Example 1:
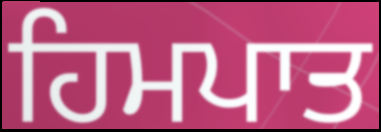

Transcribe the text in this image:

ਹਿਮਪਾਤ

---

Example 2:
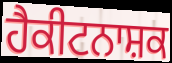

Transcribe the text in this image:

ਹੈਕੀਟਨਾਸ਼ਕ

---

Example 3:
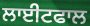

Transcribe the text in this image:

ਲਾਈਟਫਾਲ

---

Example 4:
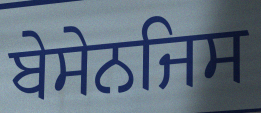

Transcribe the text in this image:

ਬੇਸੇਨਜਿਸ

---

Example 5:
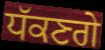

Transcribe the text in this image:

ਧੱਕਣਗੇ